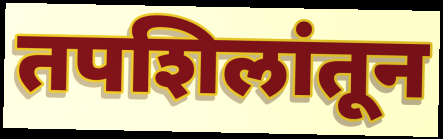
तपशिलांतून